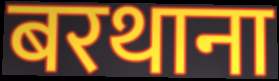
बरथाना